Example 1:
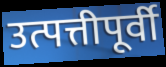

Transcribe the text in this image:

उत्पत्तीपूर्वी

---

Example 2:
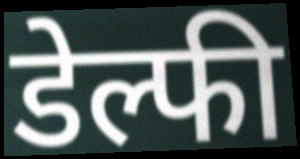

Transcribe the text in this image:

डेल्फी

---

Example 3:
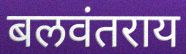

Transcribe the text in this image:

बलवंतराय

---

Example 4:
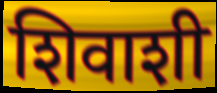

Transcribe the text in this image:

शिवाशी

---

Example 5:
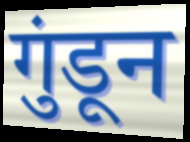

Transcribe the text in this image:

गुंडून